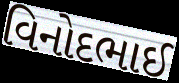
વિનોદભાઈ